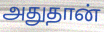
அதுதான்